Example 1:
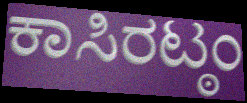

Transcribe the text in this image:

ಕಾಸಿರಟ್ಠಂ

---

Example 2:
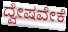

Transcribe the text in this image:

ದ್ವೇಷವೇಕೆ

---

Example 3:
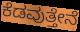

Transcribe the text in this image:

ಕೆಡವುತ್ತೇನೆ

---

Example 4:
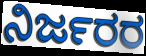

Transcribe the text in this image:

ನಿರ್ಜರರ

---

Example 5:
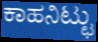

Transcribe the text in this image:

ಕಾಹನಿಟ್ಟು